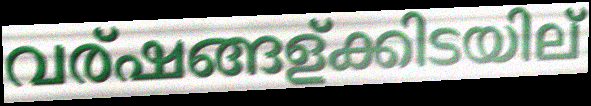
വര്ഷങ്ങള്ക്കിടയില്